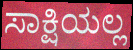
ಸಾಕ್ಷಿಯಲ್ಲ